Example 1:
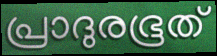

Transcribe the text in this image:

പ്രാദുരഭൂത്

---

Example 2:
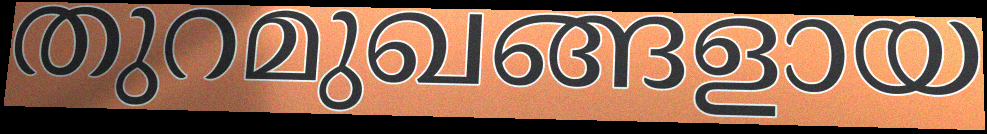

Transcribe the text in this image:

തുറമുഖങ്ങളായ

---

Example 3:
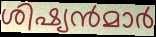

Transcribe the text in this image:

ശിഷ്യൻമാർ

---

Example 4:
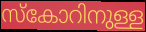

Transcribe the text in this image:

സ്കോറിനുള്ള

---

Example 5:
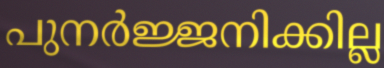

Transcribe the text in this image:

പുനർജ്ജനിക്കില്ല